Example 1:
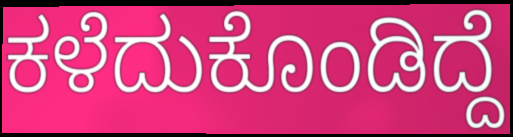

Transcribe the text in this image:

ಕಳೆದುಕೊಂಡಿದ್ದೆ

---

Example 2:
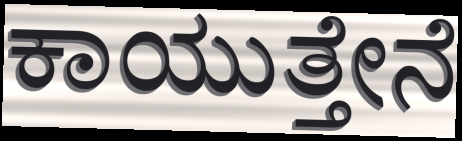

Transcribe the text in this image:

ಕಾಯುತ್ತೇನೆ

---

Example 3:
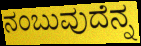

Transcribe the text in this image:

ನಂಬುವುದೆನ್ನ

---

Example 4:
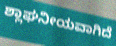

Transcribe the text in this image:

ಶ್ಲಾಘನೀಯವಾಗಿದೆ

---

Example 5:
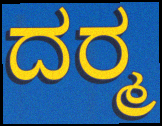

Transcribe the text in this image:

ದರ‍್ಮ